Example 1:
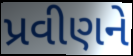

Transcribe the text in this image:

પ્રવીણને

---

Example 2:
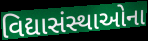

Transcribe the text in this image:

વિદ્યાસંસ્થાઓના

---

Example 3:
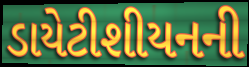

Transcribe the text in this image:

ડાયેટીશીયનની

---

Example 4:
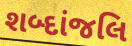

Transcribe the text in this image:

શબ્દાંજલિ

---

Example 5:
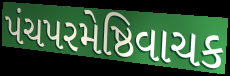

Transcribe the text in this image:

પંચપરમેષ્ઠિવાચક